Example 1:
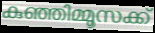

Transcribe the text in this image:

കുഞ്ഞിമ്മൂസക്ക്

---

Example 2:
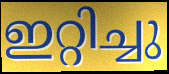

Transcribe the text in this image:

ഇറ്റിച്ചു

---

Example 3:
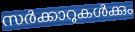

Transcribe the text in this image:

സർക്കാറുകൾക്കും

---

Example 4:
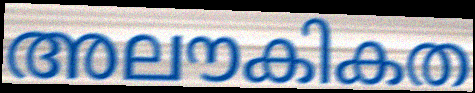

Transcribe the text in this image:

അലൗകികത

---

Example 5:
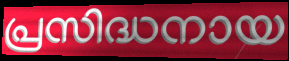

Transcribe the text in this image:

പ്രസിദ്ധനായ